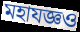
মহাযজ্ঞও